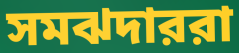
সমঝদাররা